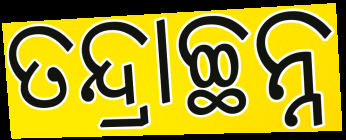
ତନ୍ଦ୍ରାଚ୍ଛନ୍ନ